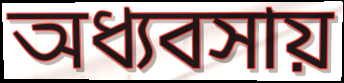
অধ্যবসায়